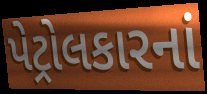
પેટ્રોલકારનાં